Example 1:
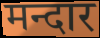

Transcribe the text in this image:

मन्दार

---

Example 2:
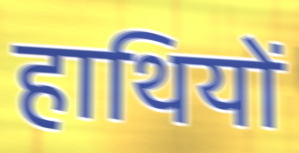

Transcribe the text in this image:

हाथियों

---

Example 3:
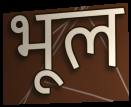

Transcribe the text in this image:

भूल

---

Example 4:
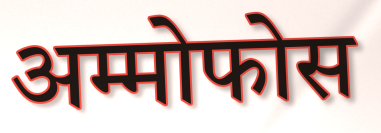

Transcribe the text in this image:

अम्मोफोस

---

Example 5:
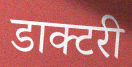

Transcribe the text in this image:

डाक्टरी